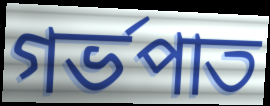
গর্ভপাত